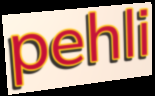
pehli